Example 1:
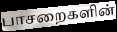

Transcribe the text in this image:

பாசறைகளின்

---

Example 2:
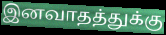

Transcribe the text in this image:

இனவாதத்துக்கு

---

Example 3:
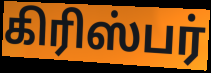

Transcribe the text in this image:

கிரிஸ்பர்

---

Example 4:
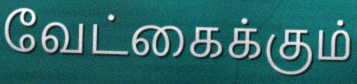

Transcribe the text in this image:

வேட்கைக்கும்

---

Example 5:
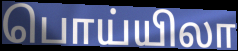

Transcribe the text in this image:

பொய்யிலா